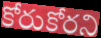
కోరుకోరని